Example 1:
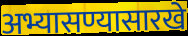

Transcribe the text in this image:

अभ्यासण्यासारखे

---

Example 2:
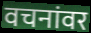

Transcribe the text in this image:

वचनांवर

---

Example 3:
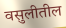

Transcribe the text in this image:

वसुलीतील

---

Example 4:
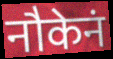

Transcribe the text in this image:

नौकेनं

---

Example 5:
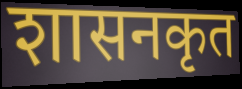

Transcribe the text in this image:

शासनकृत